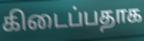
கிடைப்பதாக